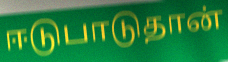
ஈடுபாடுதான்